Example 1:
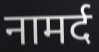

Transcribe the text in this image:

नामर्द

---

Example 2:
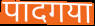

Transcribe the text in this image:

पादगया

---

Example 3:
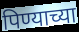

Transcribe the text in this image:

पिण्याच्या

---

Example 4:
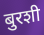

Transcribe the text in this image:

बुरशी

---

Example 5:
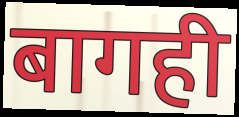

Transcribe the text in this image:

बागही